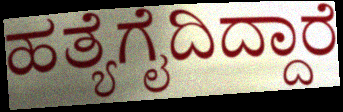
ಹತ್ಯೆಗೈದಿದ್ದಾರೆ